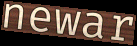
newar